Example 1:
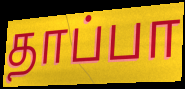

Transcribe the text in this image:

தாப்பா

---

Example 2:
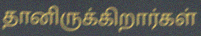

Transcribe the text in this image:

தானிருக்கிறார்கள்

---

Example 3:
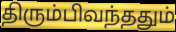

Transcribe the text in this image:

திரும்பிவந்ததும்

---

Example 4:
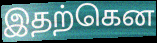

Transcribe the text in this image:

இதற்கென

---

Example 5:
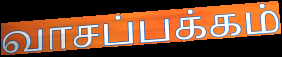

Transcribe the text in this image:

வாசப்பக்கம்